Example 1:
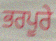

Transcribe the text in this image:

ਭਰਪੂਰੇ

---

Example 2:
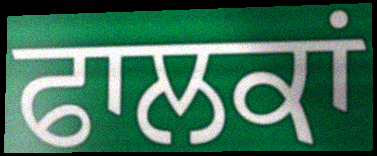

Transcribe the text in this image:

ਫਾਲਕਾਂ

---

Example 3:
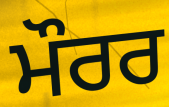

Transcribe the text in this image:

ਮੌਰਰ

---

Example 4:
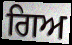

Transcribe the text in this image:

ਗਿਅ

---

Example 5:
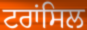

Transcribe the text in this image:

ਟਰਾਂਸਿਲ